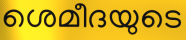
ശെമീദയുടെ